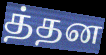
த்தன